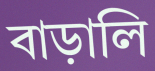
বাড়ালি